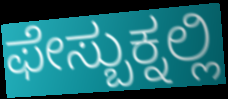
ಫೇಸ್ಬುಕ್ನಲ್ಲಿ